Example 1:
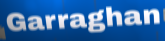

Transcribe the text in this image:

Garraghan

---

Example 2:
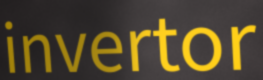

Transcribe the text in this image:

invertor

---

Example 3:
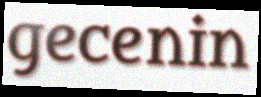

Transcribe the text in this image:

gecenin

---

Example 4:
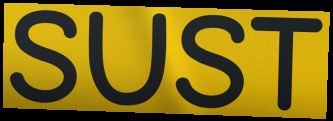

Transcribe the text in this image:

SUST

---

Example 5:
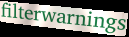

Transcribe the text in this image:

filterwarnings